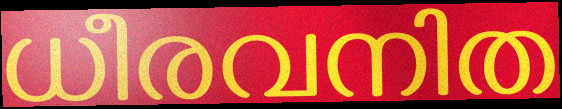
ധീരവനിത